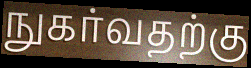
நுகர்வதற்கு